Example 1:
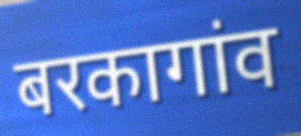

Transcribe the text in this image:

बरकागांव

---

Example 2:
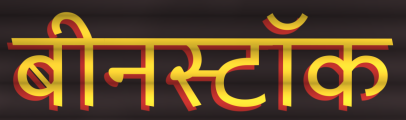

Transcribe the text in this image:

बीनस्टॉक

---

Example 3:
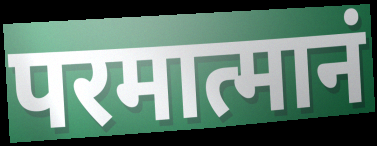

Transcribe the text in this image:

परमात्मानं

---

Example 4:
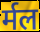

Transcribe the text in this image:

र्मल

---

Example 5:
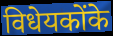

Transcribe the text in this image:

विधेयकोंके